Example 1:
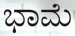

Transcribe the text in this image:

ಭಾಮೆ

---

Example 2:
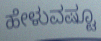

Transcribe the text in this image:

ಹೇಳುವಷ್ಟೂ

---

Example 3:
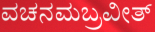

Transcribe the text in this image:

ವಚನಮಬ್ರವೀತ್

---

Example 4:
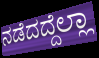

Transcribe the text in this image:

ನಡೆದದ್ದೆಲ್ಲಾ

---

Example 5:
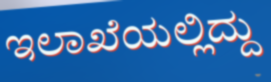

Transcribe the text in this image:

ಇಲಾಖೆಯಲ್ಲಿದ್ದು